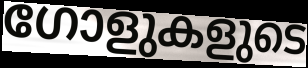
ഗോളുകളുടെ